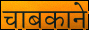
चाबकाने